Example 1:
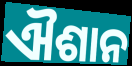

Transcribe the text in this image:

ଐଶାନ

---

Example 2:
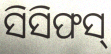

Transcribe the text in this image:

ସିସିଫସ୍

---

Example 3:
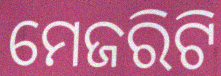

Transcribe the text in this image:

ମେଜରିଟି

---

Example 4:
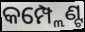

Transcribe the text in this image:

କମ୍ପ୍ଲେଣ୍ଟ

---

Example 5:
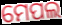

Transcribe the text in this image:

ମେପଲ